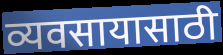
व्यवसायासाठी